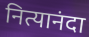
नित्यानंदा